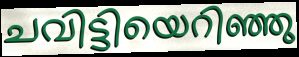
ചവിട്ടിയെറിഞ്ഞു